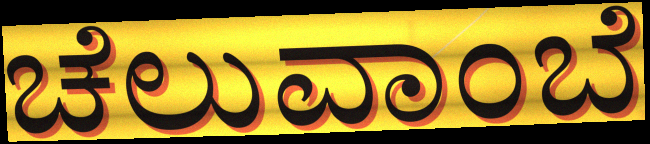
ಚೆಲುವಾಂಬೆ